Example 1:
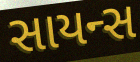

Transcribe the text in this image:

સાયન્સ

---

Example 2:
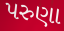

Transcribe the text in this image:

પરુણા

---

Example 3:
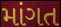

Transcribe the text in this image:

માંગત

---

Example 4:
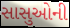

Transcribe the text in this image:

સાસુઓની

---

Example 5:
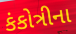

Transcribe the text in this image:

કંકોત્રીના